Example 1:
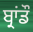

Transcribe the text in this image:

ਬ੍ਰਾਂਡੌ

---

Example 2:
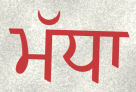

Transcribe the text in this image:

ਮੱਧਾ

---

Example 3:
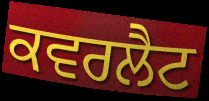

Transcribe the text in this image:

ਕਵਰਲੈਟ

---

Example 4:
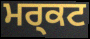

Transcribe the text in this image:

ਮਰ੍ਕਟ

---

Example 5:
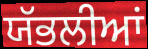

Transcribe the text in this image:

ਯੱਭਲੀਆਂ